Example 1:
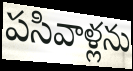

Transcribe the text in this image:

పసివాళ్లను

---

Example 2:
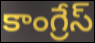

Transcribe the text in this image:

కాంగ్రేస్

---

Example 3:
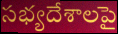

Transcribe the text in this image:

సభ్యదేశాలపై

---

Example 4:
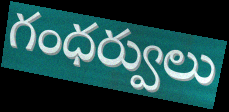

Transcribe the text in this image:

గంధర్వులు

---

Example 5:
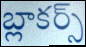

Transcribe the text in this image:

బ్లాకర్స్